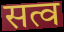
सत्व